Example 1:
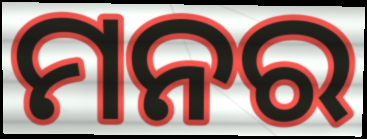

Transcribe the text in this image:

ମନର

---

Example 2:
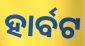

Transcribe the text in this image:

ହାର୍ବଟ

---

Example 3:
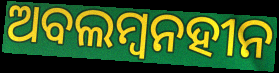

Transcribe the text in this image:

ଅବଲମ୍ବନହୀନ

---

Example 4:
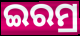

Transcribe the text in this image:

ଇରମ୍ର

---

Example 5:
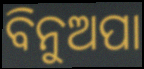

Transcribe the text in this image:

ବିନୁଅପା